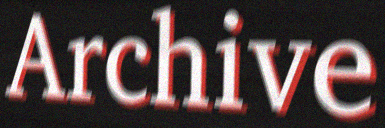
Archive